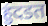
हुंदडत